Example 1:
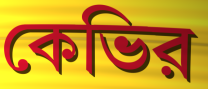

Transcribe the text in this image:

কেভির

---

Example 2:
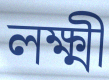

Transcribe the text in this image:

লক্ষ্মী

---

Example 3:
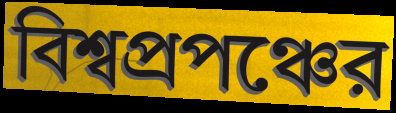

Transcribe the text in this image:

বিশ্বপ্রপঞ্চের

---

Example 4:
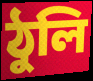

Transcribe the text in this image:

ঠুলি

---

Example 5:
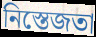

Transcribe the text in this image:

নিস্তেজতা